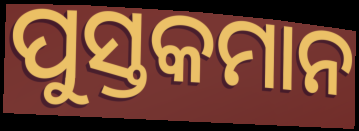
ପୁସ୍ତକମାନ